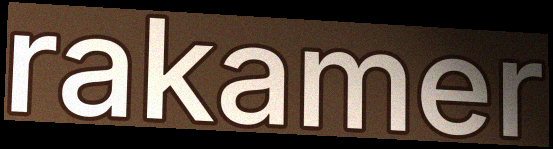
rakamer